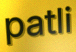
patli